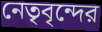
নেতৃবৃন্দের